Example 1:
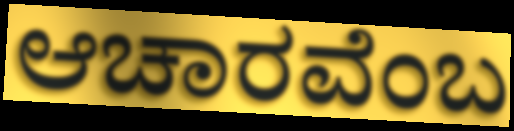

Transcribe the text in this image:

ಆಚಾರವೆಂಬ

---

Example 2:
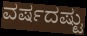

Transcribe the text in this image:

ವರ್ಷದಷ್ಟು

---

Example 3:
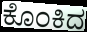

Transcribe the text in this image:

ಕೊಂಕಿದ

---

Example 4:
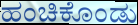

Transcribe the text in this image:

ಹಂಚಿಕೊಂಡು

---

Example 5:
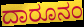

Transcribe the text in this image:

ದಾರೂನಂ